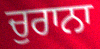
ਚੁਰਾਨਾ